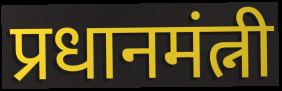
प्रधानमंत्नी